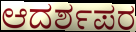
ಆದರ್ಶಪರ